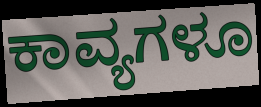
ಕಾವ್ಯಗಳೂ